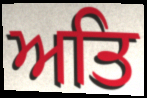
ਅਤਿ